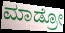
ಮಾಡ್ರೋ